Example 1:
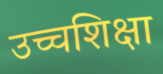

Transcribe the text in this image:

उच्‍चशिक्षा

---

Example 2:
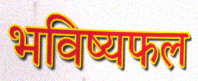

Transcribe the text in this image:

भविष्‍यफल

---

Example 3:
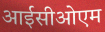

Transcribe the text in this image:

आईसीओएम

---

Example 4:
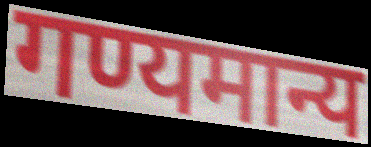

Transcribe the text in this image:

गण्यमान्य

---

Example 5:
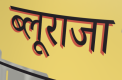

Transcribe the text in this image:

ब्लूराजा